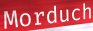
Morduch